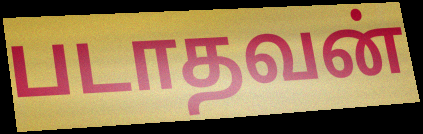
படாதவன்